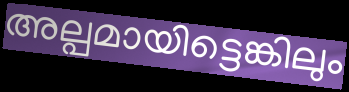
അല്പമായിട്ടെങ്കിലും